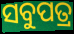
ସବୁପତ୍ର